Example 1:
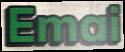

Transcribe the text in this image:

Emai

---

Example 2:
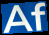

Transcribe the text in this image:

Af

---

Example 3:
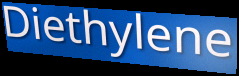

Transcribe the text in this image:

Diethylene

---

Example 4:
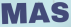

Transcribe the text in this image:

MAS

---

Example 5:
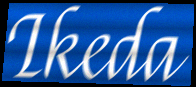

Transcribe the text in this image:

Ikeda